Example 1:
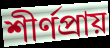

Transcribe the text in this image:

শীর্ণপ্রায়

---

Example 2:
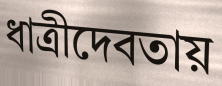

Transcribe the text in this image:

ধাত্রীদেবতায়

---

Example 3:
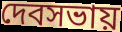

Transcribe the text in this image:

দেবসভায়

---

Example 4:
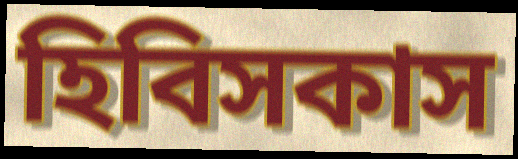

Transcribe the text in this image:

হিবিসকাস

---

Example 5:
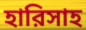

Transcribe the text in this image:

হারিসাহ